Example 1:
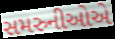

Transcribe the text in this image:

સમરુનીઓએ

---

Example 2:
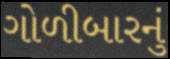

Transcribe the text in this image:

ગોળીબારનું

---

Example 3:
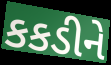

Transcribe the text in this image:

કકડીને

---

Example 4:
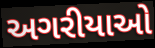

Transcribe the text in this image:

અગરીયાઓ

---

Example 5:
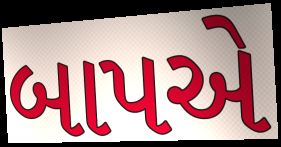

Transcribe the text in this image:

બાપએ